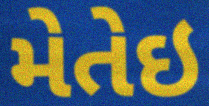
મેતેઇ